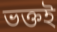
ভক্তই